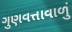
ગુણવત્તાવાળું